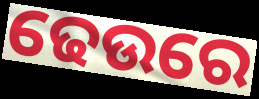
ଢେଉରେ